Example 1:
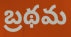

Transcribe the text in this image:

బ్రథమ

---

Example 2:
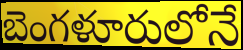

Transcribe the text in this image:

బెంగళూరులోనే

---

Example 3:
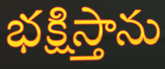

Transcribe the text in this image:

భక్షిస్తాను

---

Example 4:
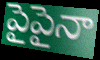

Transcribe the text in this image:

పైపైనా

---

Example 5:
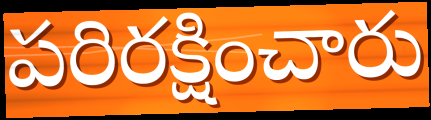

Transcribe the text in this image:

పరిరక్షించారు